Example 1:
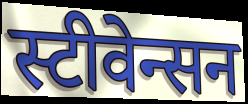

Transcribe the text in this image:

स्टीवेन्सन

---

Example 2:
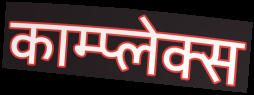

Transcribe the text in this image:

काम्प्लेक्स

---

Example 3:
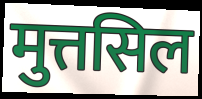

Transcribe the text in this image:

मुत्तसिल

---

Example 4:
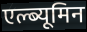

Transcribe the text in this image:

एल्ब्यूमिन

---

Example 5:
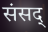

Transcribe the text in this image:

संसद्